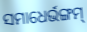
ସମାଧେର୍ଭଙ୍ଗମ୍